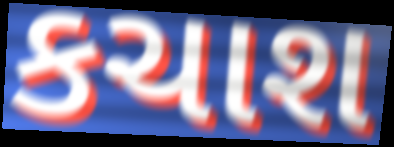
કચાશ